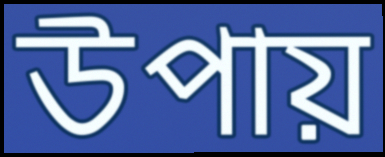
উপায়